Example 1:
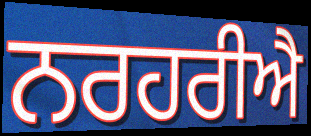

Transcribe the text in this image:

ਨਰਹਰੀਐ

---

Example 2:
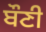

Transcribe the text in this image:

ਬੌਣੀ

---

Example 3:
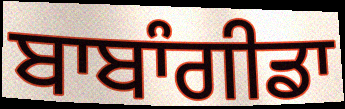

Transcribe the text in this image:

ਬਾਬਾੰਗੀਡਾ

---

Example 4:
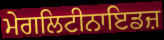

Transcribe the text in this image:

ਮੇਗਲਿਟੀਨਾਇਡਜ਼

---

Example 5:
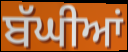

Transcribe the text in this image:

ਬੱਘੀਆਂ